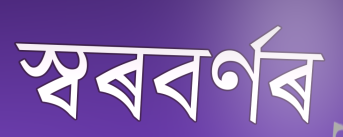
স্বৰবৰ্ণৰ